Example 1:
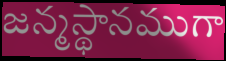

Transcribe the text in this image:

జన్మస్థానముగా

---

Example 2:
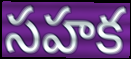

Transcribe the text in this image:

సహక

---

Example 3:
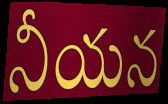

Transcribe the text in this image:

నీయన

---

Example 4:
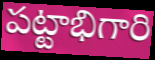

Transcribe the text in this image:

పట్టాభిగారి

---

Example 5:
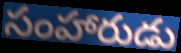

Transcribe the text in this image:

సంహారుడు